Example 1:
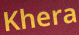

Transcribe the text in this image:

Khera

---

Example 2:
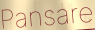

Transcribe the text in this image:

Pansare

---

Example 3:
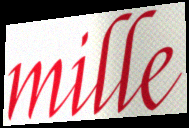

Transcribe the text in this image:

mille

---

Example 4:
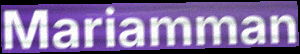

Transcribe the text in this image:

Mariamman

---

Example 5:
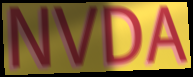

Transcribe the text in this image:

NVDA